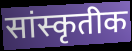
सांस्कृतीक